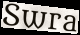
Swra